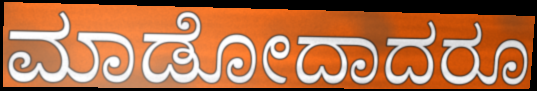
ಮಾಡೋದಾದರೂ